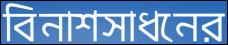
বিনাশসাধনের